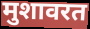
मुशावरत